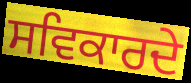
ਸਵਿਕਾਰਦੇ